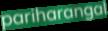
pariharangal